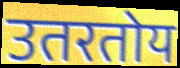
उतरतोय